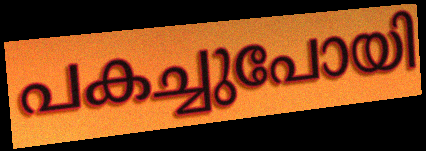
പകച്ചുപോയി